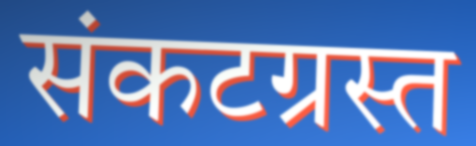
संकटग्रस्त